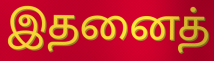
இதனைத்